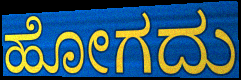
ಹೋಗದು